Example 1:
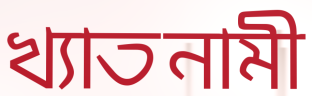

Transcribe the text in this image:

খ্যাতনামী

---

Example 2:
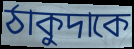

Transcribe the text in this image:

ঠাকুদাকে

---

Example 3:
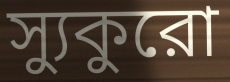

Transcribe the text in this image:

স্যুকুরো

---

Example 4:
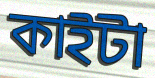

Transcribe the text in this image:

কাইটা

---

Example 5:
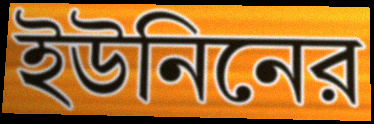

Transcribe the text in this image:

ইউনিনের